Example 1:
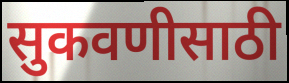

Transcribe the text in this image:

सुकवणीसाठी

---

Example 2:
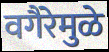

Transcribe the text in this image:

वगैरेमुळे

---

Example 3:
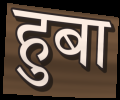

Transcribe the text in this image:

हुबा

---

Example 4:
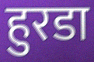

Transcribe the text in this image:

हुरडा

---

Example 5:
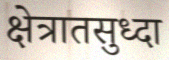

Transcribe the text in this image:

क्षेत्रातसुध्दा